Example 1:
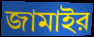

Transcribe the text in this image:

জামাইর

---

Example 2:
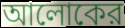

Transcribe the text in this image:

আলোকের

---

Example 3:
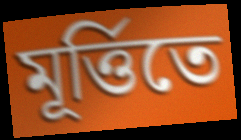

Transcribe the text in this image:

মূর্ত্তিতে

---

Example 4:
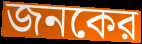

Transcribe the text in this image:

জনকের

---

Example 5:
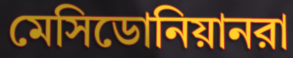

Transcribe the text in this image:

মেসিডোনিয়ানরা